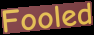
Fooled